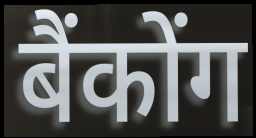
बैंकोंग